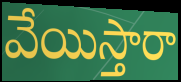
వేయిస్తారా